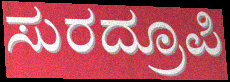
ಸುರದ್ರೂಪಿ